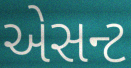
એસન્ટ